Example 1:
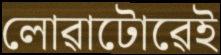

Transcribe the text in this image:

লোৱাটোৱেই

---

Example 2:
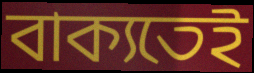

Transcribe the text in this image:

বাক্যতেই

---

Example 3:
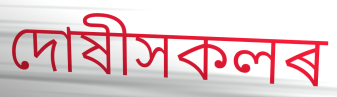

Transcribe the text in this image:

দোষীসকলৰ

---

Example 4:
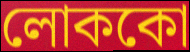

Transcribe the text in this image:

লোককো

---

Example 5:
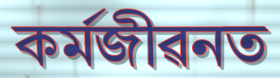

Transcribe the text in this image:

কৰ্মজীৱনত